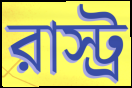
রাস্ট্র